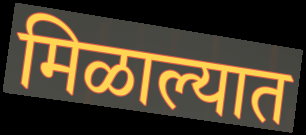
मिळाल्यात